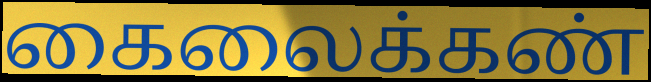
கைலைக்கண்